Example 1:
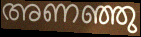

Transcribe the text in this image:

അണഞ്ഞു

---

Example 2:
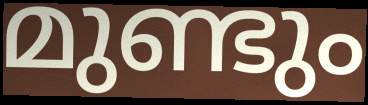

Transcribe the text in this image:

മുണ്ടും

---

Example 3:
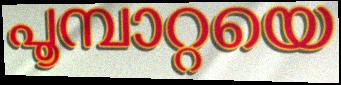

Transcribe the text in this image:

പൂമ്പാറ്റയെ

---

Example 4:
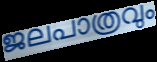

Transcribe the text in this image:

ജലപാത്രവും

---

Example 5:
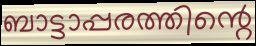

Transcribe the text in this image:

ബാട്ടാപ്പരത്തിന്റെ